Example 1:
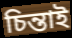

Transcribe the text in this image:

চিন্তাই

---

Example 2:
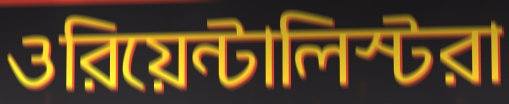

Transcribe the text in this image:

ওরিয়েন্টালিস্টরা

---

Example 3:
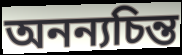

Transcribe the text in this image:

অনন্যচিন্ত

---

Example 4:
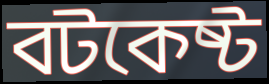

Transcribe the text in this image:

বটকেষ্ট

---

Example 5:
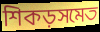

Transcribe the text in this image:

শিকড়সমেত